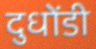
दुधोंडी